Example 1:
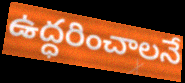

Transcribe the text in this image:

ఉద్ధరించాలనే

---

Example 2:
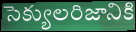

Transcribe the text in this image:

సెక్యులరిజానికి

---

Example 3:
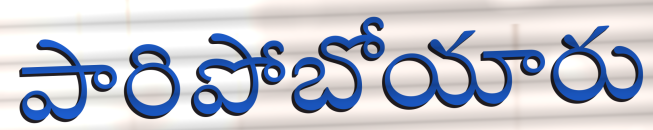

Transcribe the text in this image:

పారిపోబోయారు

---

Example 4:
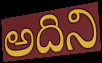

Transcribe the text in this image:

అదిని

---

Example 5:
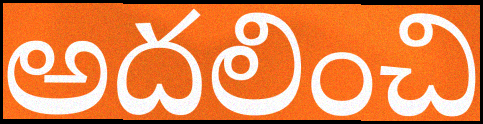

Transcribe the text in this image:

అదలించి